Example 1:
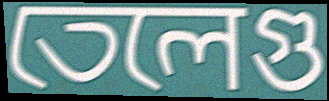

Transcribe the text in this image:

তেলেগু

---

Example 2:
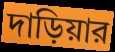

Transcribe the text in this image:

দাড়িয়ার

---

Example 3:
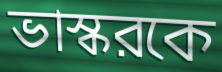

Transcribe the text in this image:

ভাস্করকে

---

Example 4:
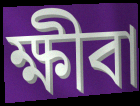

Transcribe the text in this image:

ক্ষীবা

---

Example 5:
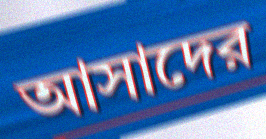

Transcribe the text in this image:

আসাদের